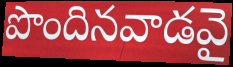
పొందినవాడవై